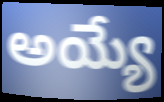
అయ్యే